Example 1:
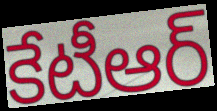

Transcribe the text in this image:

కేటీఆర్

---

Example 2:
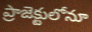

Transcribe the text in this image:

ప్రాజెక్టులోనూ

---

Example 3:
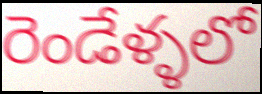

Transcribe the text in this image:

రెండేళ్ళలో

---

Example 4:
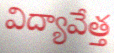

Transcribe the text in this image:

విద్యావేత్త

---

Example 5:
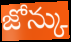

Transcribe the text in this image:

జోన్కు